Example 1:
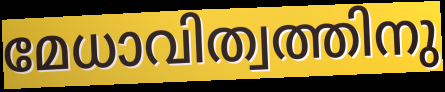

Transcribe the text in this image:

മേധാവിത്വത്തിനു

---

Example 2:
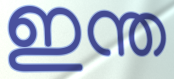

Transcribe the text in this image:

ഇന്ത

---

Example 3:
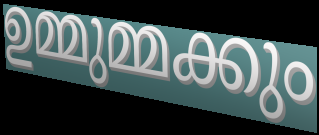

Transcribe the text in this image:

ഉമ്മുമ്മക്കും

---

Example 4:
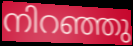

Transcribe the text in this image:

നിറഞ്ഞു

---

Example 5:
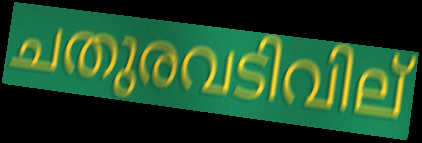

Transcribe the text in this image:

ചതുരവടിവില്